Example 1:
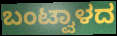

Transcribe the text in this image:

ಬಂಟ್ವಾಳದ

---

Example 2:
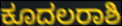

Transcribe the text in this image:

ಕೂದಲರಾಶಿ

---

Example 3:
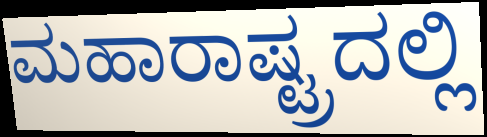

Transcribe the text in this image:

ಮಹಾರಾಷ್ಟ್ರದಲ್ಲಿ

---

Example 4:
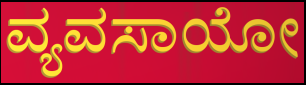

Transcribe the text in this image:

ವ್ಯವಸಾಯೋ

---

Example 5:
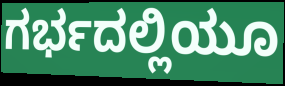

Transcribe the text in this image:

ಗರ್ಭದಲ್ಲಿಯೂ